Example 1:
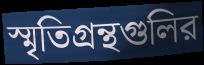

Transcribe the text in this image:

স্মৃতিগ্রন্থগুলির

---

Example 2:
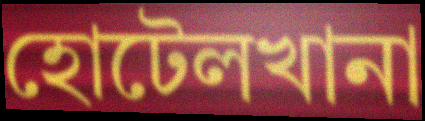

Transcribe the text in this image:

হোটেলখানা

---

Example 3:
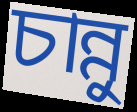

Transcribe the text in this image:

চান্নু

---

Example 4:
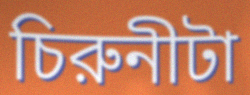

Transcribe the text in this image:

চিরুনীটা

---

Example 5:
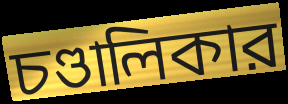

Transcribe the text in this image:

চণ্ডালিকার